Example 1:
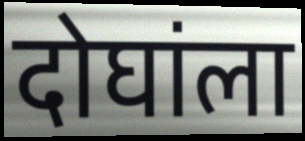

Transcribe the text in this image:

दोघांला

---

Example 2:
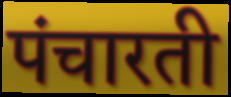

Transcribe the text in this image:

पंचारती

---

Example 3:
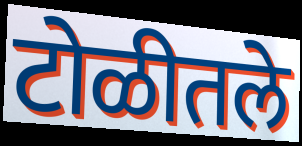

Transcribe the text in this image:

टोळीतले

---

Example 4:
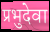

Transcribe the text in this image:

प्रभुदेवा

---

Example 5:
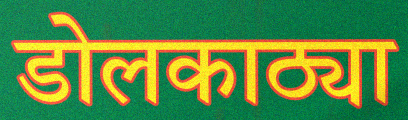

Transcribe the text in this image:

डोलकाठ्या